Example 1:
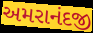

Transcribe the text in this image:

અમરાનંદજી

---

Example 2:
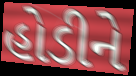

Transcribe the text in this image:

હોડીને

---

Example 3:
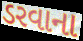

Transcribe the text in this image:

ડરવાના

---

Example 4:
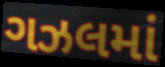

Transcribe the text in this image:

ગઝલમાં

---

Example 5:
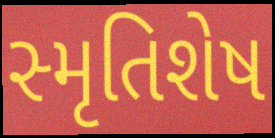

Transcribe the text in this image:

સ્મૃતિશેષ